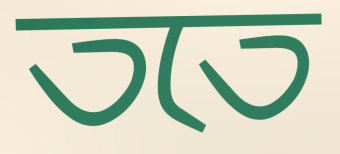
ততে